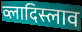
व्लादिस्लाव